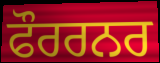
ਫੌਰਰਨਰ